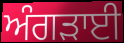
ਅੰਗੜਾਈ